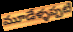
మూడేళ్ళప్పటి